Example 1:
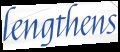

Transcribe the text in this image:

lengthens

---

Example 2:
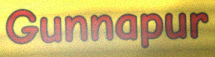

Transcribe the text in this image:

Gunnapur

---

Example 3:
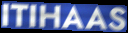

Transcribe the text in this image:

ITIHAAS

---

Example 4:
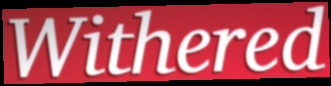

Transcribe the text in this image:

Withered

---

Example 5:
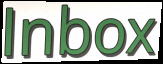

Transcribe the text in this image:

Inbox